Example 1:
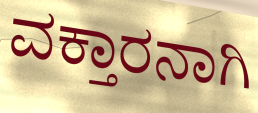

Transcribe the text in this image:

ವಕ್ತಾರನಾಗಿ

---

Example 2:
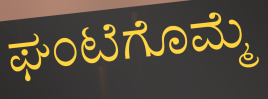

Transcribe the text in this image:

ಘಂಟೆಗೊಮ್ಮೆ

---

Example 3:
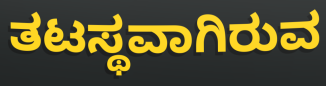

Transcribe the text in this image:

ತಟಸ್ಥವಾಗಿರುವ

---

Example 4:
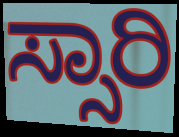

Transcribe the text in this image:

ಸ್ಸಾರಿ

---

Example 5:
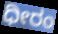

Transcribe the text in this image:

ಧೀರಂ